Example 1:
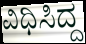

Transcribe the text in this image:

ವಿಧಿಸಿದ್ದ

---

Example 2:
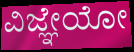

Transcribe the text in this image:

ವಿಜ್ಞೇಯೋ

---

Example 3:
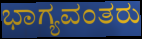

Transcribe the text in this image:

ಭಾಗ್ಯವಂತರು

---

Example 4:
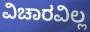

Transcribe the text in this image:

ವಿಚಾರವಿಲ್ಲ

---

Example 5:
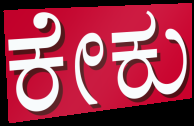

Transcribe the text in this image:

ಕೇಕು